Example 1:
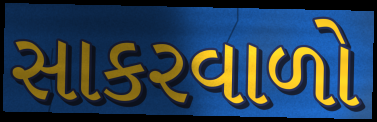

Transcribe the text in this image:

સાકરવાળો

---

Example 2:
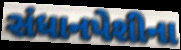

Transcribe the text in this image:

સંધાનપેશીના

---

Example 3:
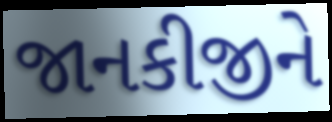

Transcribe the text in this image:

જાનકીજીને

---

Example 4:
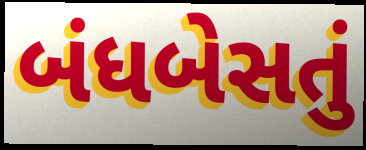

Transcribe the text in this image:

બંધબેસતું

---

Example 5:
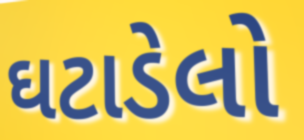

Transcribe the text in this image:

ઘટાડેલો